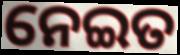
ନେଇତ